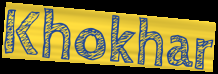
Khokhar